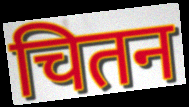
चितन